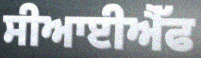
ਸੀਆਈਐੱਫ